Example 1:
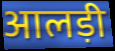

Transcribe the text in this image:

आलड़ी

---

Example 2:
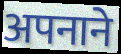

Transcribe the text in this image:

अपनाने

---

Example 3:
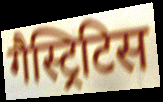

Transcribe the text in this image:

गैस्ट्रिटिस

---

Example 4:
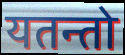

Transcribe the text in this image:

यतन्तो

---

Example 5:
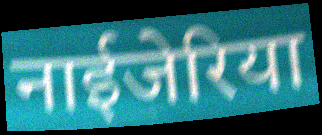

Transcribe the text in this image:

नाईजेरिया